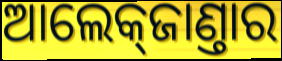
ଆଲେକ୍‌ଜାଣ୍ତାର